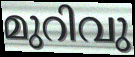
മുറിവു